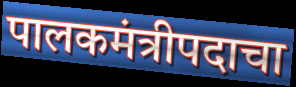
पालकमंत्रीपदाचा